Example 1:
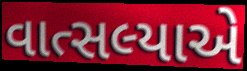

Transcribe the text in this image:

વાત્સલ્યાએ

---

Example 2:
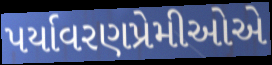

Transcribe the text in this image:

પર્યાવરણપ્રેમીઓએ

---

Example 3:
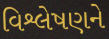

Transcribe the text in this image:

વિશ્લેષણને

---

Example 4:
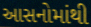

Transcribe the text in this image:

આસનોમાંથી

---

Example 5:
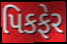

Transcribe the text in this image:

પિકફેર